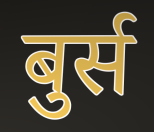
बुर्स